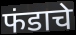
फंडाचे